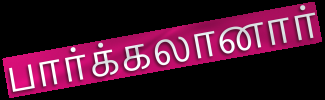
பார்க்கலானார்